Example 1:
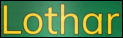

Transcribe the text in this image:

Lothar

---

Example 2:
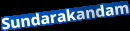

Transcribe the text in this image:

Sundarakandam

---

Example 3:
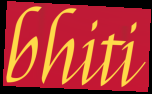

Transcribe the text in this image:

bhiti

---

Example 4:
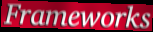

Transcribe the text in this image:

Frameworks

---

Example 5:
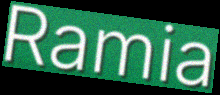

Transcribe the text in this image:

Ramia